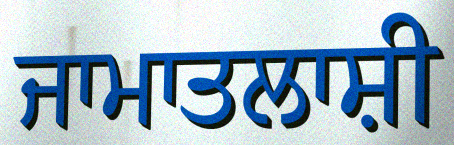
ਜਾਮਾਤਲਾਸ਼ੀ